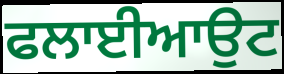
ਫਲਾਈਆਉਟ